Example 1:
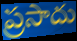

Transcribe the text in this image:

ప్రసాదు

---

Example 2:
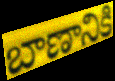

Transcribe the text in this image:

బాణానికి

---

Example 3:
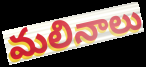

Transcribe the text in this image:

మలినాలు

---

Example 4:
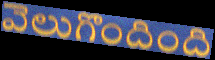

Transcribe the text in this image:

వెలుగొందింది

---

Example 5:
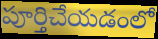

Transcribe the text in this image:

పూర్తిచేయడంలో